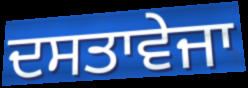
ਦਸਤਾਵੇਜਾ